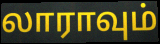
லாராவும்